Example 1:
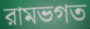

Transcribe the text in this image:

রামভগত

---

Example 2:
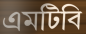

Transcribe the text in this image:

এমটিবি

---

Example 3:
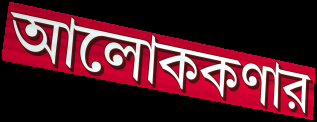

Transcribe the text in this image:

আলোককণার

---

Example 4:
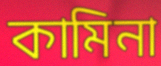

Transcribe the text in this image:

কামিনা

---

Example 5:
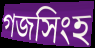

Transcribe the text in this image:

গজসিংহ